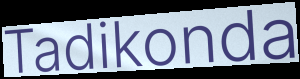
Tadikonda